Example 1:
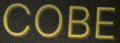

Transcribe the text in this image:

COBE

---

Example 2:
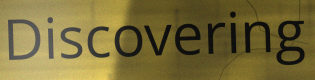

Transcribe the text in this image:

Discovering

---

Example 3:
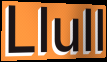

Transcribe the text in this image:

Llull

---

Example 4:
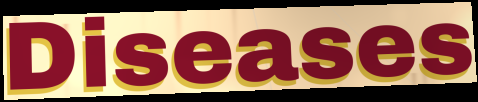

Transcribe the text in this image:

Diseases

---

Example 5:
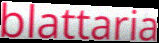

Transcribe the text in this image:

blattaria